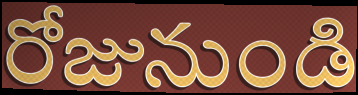
రోజునుండి